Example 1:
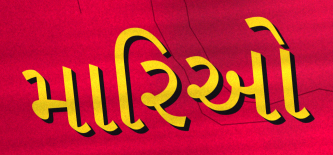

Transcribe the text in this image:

મારિઓ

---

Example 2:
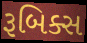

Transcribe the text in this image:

રૂબિક્સ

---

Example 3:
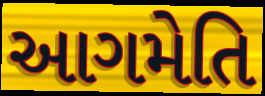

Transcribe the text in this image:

આગમેતિ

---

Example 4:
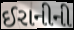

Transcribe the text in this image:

ઈરાનીની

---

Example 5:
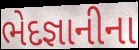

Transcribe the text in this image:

ભેદજ્ઞાનીના